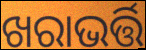
ଖରାଭର୍ତ୍ତି